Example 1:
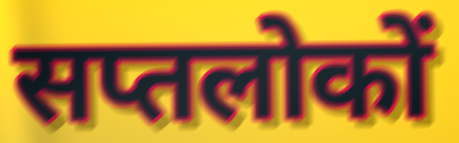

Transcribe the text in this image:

सप्तलोकों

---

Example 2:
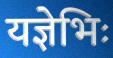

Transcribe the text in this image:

यज्ञेभिः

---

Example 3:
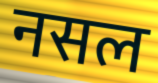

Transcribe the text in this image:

नसल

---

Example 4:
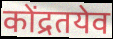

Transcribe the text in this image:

कोंद्रतयेव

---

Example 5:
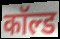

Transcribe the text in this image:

कॉल्ड